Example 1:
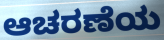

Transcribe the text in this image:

ಆಚರಣೆಯ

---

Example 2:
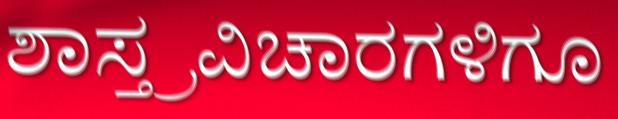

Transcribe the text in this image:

ಶಾಸ್ತ್ರವಿಚಾರಗಳಿಗೂ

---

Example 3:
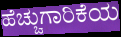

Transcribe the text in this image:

ಹೆಚ್ಚುಗಾರಿಕೆಯ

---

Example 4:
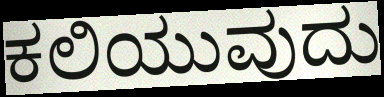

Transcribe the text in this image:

ಕಲಿಯುವುದು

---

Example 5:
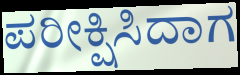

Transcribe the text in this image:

ಪರೀಕ್ಷಿಸಿದಾಗ